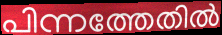
പിന്നത്തേതിൽ